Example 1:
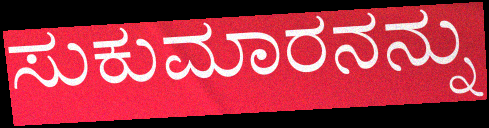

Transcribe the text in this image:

ಸುಕುಮಾರನನ್ನು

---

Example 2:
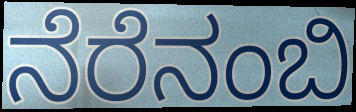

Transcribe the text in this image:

ನೆರೆನಂಬಿ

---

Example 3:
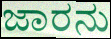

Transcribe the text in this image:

ಜಾರನು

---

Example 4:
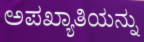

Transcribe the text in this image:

ಅಪಖ್ಯಾತಿಯನ್ನು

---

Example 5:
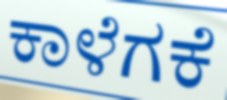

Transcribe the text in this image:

ಕಾಳೆಗಕೆ